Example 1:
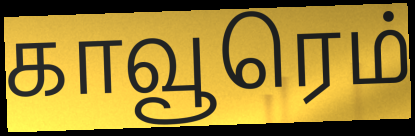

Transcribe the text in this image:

காவூரெம்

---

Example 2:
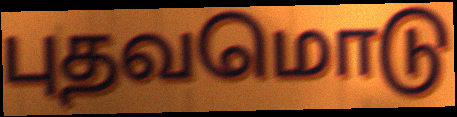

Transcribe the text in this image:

புதவமொடு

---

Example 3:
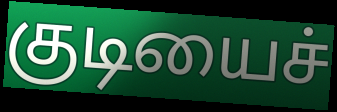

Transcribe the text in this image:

குடியைச்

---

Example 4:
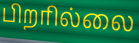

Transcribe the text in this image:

பிறரில்லை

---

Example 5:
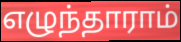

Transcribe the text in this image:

எழுந்தாராம்